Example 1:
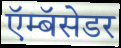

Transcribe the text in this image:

ऍम्बॅसेडर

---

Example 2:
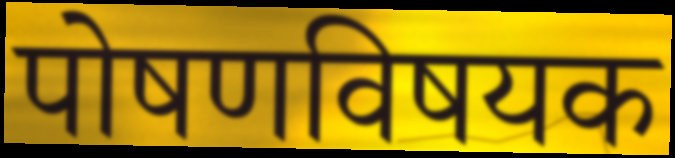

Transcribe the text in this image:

पोषणविषयक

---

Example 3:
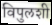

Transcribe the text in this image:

विपुलशी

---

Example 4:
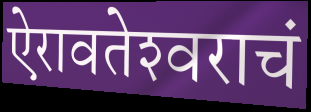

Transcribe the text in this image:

ऐरावतेश्वराचं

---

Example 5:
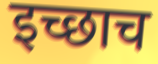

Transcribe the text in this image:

इच्छाच